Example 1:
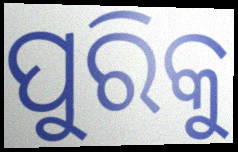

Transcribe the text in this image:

ପୁରିକୁ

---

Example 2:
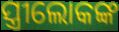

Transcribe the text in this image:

ସ୍ତ୍ରୀଲୋକଙ୍କ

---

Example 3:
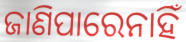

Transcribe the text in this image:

ଜାଣିପାରେନାହିଁ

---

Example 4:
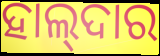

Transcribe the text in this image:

ହାଲ୍‌ଦାର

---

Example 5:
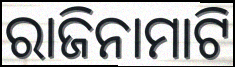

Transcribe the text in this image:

ରାଜିନାମାଟି